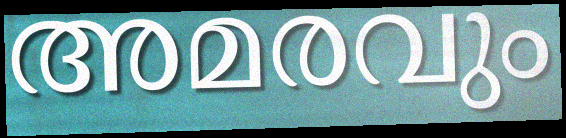
അമരവും